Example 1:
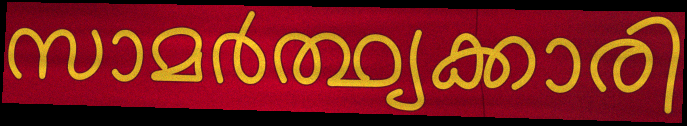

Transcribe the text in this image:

സാമർത്ഥ്യക്കാരി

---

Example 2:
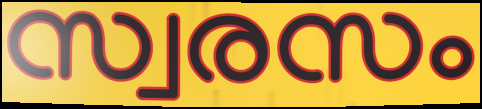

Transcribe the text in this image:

സ്വരസം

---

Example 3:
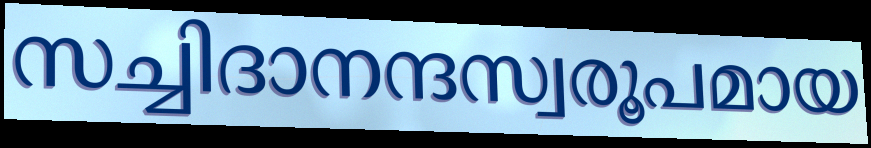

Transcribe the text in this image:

സച്ചിദാനന്ദസ്വരൂപമായ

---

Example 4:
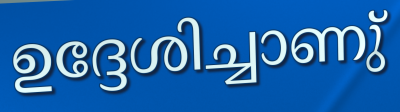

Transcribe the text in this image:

ഉദ്ദേശിച്ചാണു്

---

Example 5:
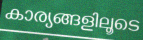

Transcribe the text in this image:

കാര്യങ്ങളിലൂടെ